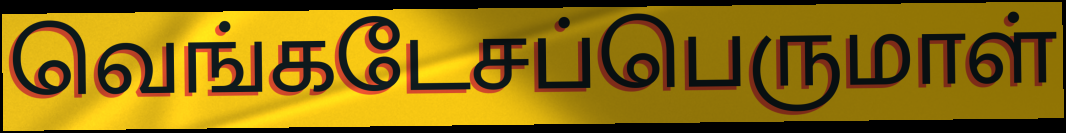
வெங்கடேசப்பெருமாள்